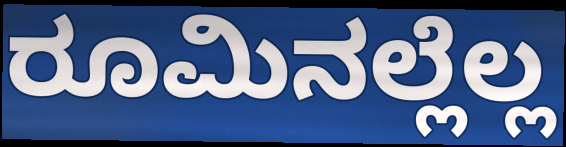
ರೂಮಿನಲ್ಲೆಲ್ಲ